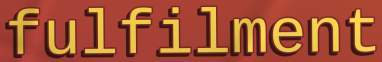
fulfilment